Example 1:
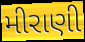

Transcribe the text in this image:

મીરાણી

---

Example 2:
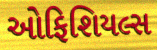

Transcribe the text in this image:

ઓફિશિયલ્સ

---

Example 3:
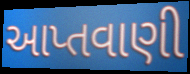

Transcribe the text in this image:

આપ્તવાણી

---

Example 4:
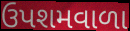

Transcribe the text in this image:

ઉપશમવાળા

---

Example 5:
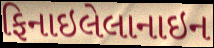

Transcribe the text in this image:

ફિનાઇલેલાનાઇન